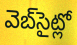
వెబ్‌సైట్లో